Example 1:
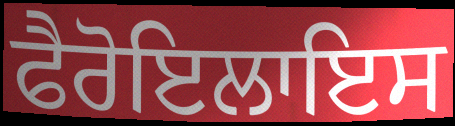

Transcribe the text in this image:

ਫੈਰੋਇਲਾਇਸ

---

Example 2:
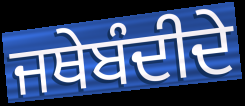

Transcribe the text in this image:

ਜਥੇਬੰਦੀਦੇ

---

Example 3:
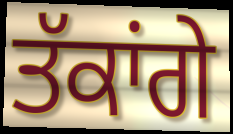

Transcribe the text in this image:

ਤੱਕਾਂਗੇ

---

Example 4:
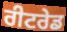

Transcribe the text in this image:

ਰੀਟਰੇਡ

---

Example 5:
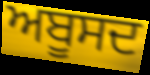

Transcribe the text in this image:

ਅਬੂਸਦ